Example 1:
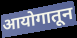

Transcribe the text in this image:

आयोगातून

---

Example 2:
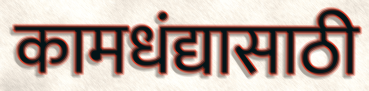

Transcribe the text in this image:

कामधंद्यासाठी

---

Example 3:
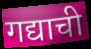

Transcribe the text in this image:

गद्याची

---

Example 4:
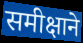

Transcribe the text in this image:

समीक्षाने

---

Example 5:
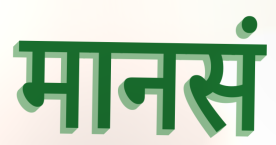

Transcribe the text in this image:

मानसं